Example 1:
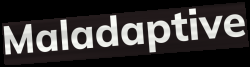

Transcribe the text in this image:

Maladaptive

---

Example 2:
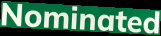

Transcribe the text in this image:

Nominated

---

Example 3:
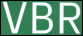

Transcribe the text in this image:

VBR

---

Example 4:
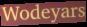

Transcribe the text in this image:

Wodeyars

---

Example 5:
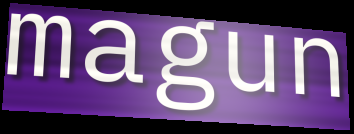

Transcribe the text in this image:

magun